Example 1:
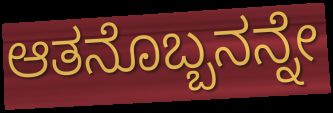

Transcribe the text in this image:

ಆತನೊಬ್ಬನನ್ನೇ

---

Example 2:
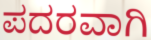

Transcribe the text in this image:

ಪದರವಾಗಿ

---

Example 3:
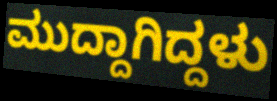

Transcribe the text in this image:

ಮುದ್ದಾಗಿದ್ದಳು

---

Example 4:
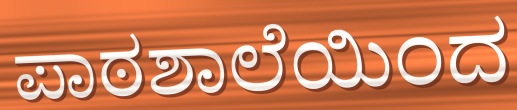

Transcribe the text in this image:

ಪಾಠಶಾಲೆಯಿಂದ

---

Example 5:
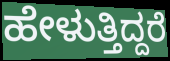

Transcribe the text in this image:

ಹೇಳುತ್ತಿದ್ದರೆ